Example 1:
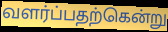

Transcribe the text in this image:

வளர்ப்பதற்கென்று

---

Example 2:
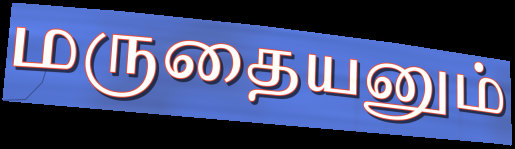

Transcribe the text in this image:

மருதையனும்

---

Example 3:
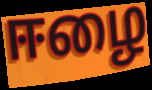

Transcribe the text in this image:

ஈழை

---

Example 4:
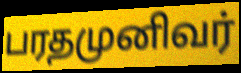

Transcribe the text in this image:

பரதமுனிவர்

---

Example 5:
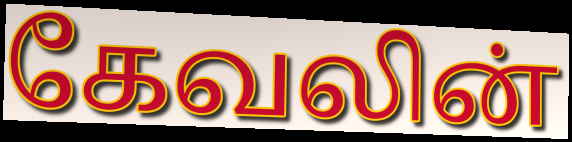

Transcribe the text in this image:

கேவலின்